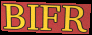
BIFR